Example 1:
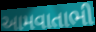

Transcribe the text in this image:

આમવાતાભી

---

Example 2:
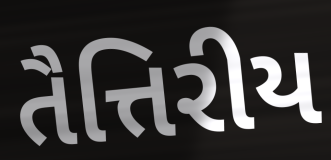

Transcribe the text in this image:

તૈત્તિરીય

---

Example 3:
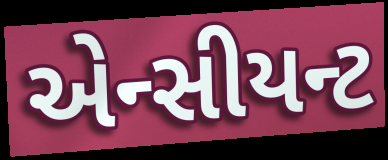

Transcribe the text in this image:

એન્સીયન્ટ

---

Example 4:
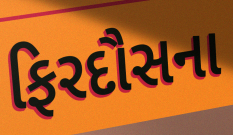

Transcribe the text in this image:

ફિરદૌસના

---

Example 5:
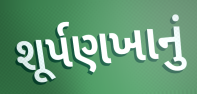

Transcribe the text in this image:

શૂર્પણખાનું